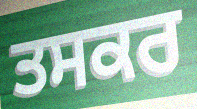
ਤਸਕਰ